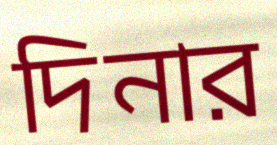
দিনার